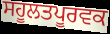
ਸਹੂਲਤਪੂਰਵਕ